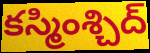
కస్మింశ్చిద్